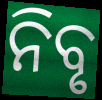
ନିବୃ